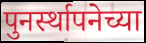
पुनर्स्थापनेच्या